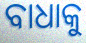
ବାଧାକୁ